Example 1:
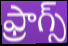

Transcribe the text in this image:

ఫ్రాగ్స్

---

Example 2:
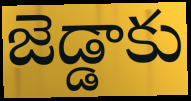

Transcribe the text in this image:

జెడ్డాకు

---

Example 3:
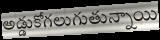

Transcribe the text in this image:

అడ్డుకోగలుగుతున్నాయి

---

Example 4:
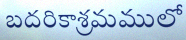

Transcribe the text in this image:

బదరికాశ్రమములో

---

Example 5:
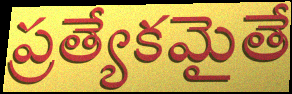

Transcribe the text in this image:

ప్రత్యేకమైతే